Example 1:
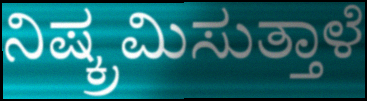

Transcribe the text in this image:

ನಿಷ್ಕ್ರಮಿಸುತ್ತಾಳೆ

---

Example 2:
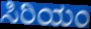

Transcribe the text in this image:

ಸಿರಿಯಂ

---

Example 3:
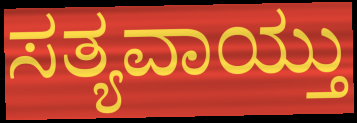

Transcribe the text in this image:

ಸತ್ಯವಾಯ್ತು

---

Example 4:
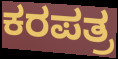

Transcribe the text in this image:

ಕರಪತ್ರ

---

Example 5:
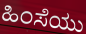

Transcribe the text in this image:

ಹಿಂಸೆಯು